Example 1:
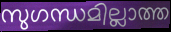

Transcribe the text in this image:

സുഗന്ധമില്ലാത്ത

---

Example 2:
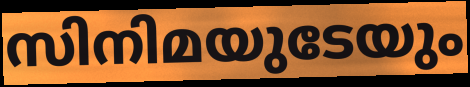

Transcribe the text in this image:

സിനിമയുടേയും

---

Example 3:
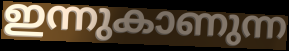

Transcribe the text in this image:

ഇന്നുകാണുന്ന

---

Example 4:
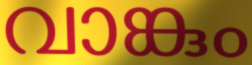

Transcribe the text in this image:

വാങ്കും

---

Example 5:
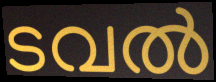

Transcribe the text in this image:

ടവൽ